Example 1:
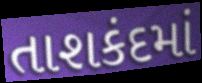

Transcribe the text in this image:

તાશકંદમાં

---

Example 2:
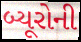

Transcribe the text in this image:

બ્યૂરોની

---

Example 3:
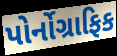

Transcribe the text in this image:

પોર્નોગ્રાફિક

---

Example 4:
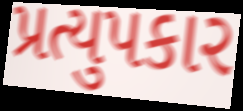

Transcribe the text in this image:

પ્રત્યુપકાર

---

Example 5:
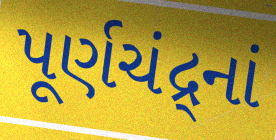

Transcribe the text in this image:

પૂર્ણચંદ્ર્નાં